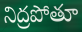
నిద్రపోతూ